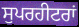
ਸੁਪਰਹੀਟਰਾਂ